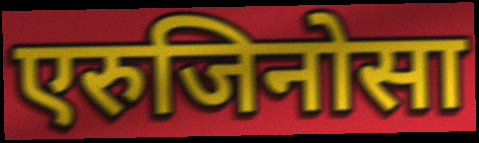
एरुजिनोसा